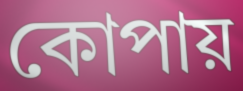
কোপায়